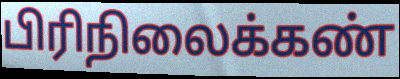
பிரிநிலைக்கண்